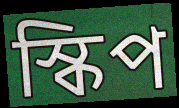
স্কিপ